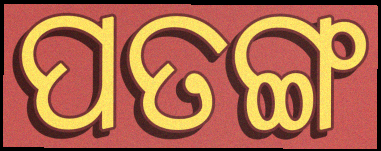
ପତଙ୍ଗ